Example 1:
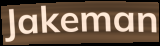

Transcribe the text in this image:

Jakeman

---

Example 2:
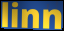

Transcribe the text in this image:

linn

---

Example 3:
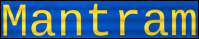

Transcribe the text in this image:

Mantram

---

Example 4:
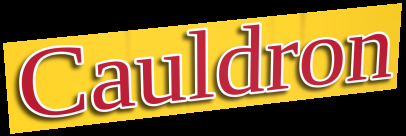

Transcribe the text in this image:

Cauldron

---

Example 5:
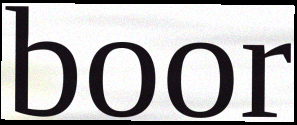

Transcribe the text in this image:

boor